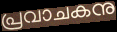
പ്രവാചകനു